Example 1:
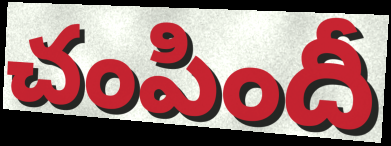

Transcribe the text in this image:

చంపిందీ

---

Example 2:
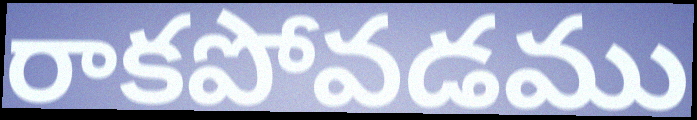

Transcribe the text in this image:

రాకపోవడము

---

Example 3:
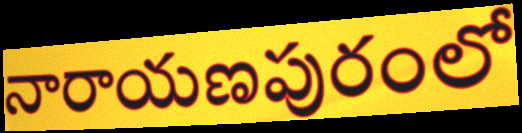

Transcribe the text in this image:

నారాయణపురంలో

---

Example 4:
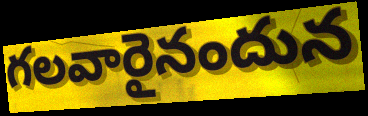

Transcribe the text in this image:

గలవారైనందున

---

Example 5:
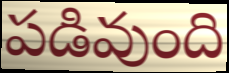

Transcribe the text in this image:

పడివుంది